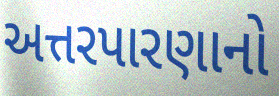
અત્તરપારણાનો